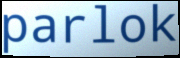
parlok